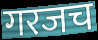
गरजच